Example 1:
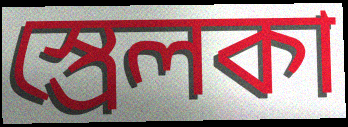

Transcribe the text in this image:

স্ত্রেলকা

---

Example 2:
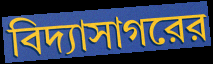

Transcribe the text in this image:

বিদ্যাসাগরের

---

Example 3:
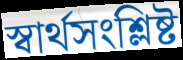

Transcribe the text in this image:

স্বার্থসংশ্লিষ্ট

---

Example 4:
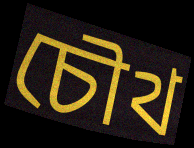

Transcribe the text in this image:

চৌথ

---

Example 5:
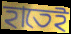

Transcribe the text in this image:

হাতেই